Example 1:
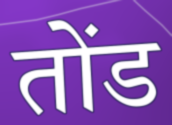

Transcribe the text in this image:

तोंड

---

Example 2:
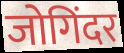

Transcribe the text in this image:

जोगिंदर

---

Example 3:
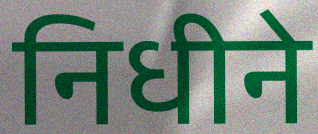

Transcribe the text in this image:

निधीने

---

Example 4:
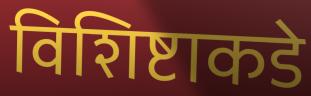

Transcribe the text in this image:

विशिष्टाकडे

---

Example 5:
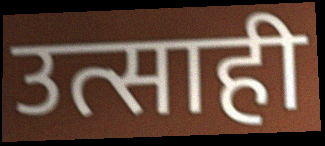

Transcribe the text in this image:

उत्साही